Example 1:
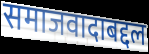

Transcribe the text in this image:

समाजवादाबद्दल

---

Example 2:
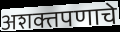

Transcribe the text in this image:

अशक्तपणाचे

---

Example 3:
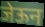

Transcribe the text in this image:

जेऊन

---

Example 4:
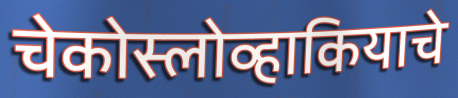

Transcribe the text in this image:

चेकोस्लोव्हाकियाचे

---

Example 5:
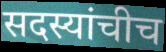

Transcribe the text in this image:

सदस्यांचीच